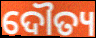
ଦୌତ୍ୟ